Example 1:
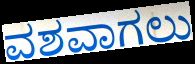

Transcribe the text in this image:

ವಶವಾಗಲು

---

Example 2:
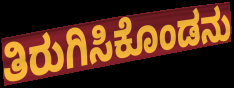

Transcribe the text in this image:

ತಿರುಗಿಸಿಕೊಂಡನು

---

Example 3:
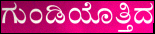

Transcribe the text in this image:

ಗುಂಡಿಯೊತ್ತಿದ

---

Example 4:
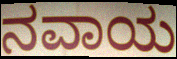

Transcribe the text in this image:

ನವಾಯ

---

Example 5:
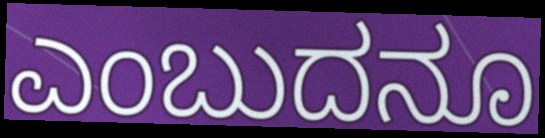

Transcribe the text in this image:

ಎಂಬುದನೂ